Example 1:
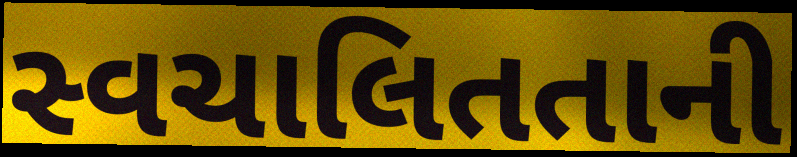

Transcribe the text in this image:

સ્વચાલિતતાની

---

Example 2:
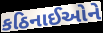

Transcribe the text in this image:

કઠિનાઈઓને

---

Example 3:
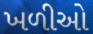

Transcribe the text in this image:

ખળીઓ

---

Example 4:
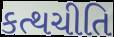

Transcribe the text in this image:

કત્થચીતિ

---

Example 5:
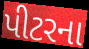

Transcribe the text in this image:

પીટરના